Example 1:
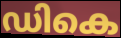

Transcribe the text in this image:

ഡികെ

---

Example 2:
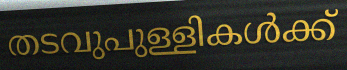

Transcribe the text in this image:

തടവുപുള്ളികൾക്ക്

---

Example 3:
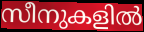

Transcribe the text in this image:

സീനുകളിൽ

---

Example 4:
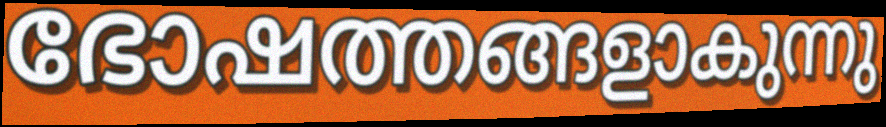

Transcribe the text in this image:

ഭോഷത്തങ്ങളാകുന്നു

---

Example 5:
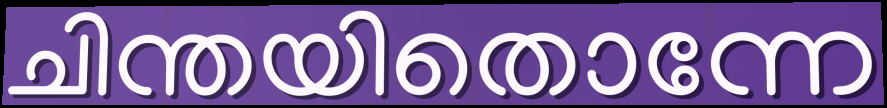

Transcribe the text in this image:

ചിന്തയിതൊന്നേ